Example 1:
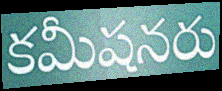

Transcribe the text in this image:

కమీషనరు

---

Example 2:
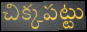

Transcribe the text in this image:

చిక్కపట్టు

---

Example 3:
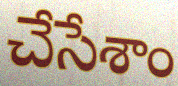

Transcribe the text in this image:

చేసేశాం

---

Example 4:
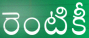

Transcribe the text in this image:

రెంటికీ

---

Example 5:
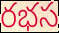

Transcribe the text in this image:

రభస